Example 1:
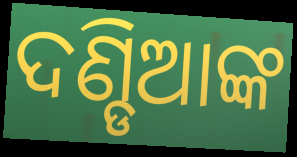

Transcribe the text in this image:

ଦଣ୍ଡିଆଙ୍କ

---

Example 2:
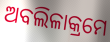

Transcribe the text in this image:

ଅବଲିଳାକ୍ରମେ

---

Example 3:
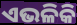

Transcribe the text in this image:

ଏଭଳିକି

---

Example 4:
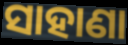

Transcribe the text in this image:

ସାହାଣା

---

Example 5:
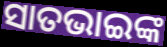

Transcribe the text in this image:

ସାତଭାଇଙ୍କ